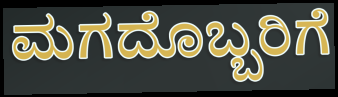
ಮಗದೊಬ್ಬರಿಗೆ